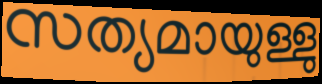
സത്യമായുള്ളു